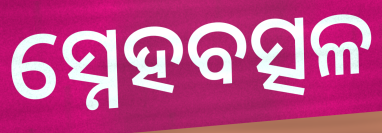
ସ୍ନେହବତ୍ସଳ